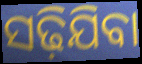
ସଢ଼ିଯିବା